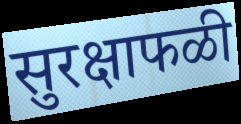
सुरक्षाफळी